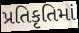
પ્રતિકૃતિમાં